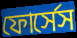
ফোর্সেস